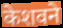
केशवने